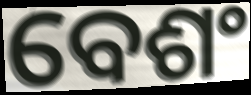
ବେଶଂ